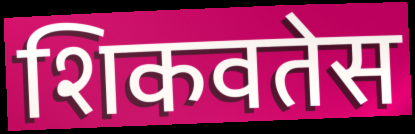
शिकवतेस